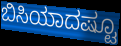
ಬಿಸಿಯಾದಷ್ಟೂ